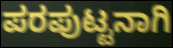
ಪರಪುಟ್ಟನಾಗಿ